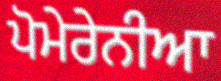
ਪੋਮੇਰੇਨੀਆ